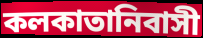
কলকাতানিবাসী